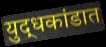
युद्धकांडात